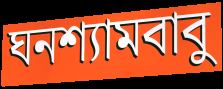
ঘনশ্যামবাবু